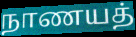
நாணயத்